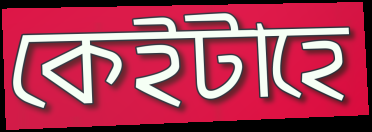
কেইটাহে